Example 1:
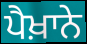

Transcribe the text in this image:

ਪੈਖ਼ਾਨੇ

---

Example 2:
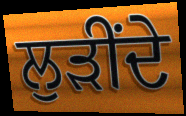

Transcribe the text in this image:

ਲੁੜੀਂਦੇ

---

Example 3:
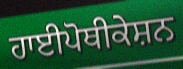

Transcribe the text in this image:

ਹਾਈਪੋਥੀਕੇਸ਼ਨ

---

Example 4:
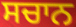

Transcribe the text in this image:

ਸਚਾਨ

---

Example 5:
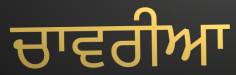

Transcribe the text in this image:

ਚਾਵਰੀਆ